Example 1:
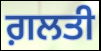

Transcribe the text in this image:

ਗ਼ਲਤੀ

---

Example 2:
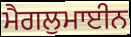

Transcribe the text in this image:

ਮੈਗਲੁਮਾਈਨ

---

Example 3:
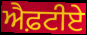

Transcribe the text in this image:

ਐਫ਼ਟੀਏ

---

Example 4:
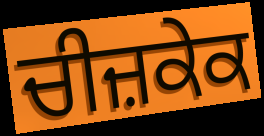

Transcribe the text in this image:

ਚੀਜ਼ਕੇਕ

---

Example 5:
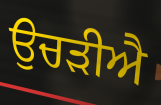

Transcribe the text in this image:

ਉਚੜੀਐ